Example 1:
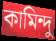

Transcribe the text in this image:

কামিন্দু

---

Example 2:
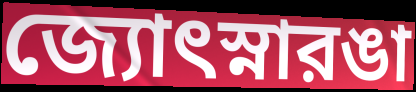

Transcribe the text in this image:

জ্যোৎস্নারঙা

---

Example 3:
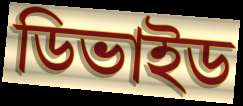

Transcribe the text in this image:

ডিভাইড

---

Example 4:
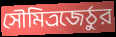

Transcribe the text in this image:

সৌমিত্রজেঠুর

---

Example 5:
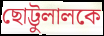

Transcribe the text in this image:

ছোট্টুলালকে